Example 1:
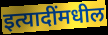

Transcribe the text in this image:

इत्यादींमधील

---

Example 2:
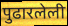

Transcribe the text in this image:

पुढारलेली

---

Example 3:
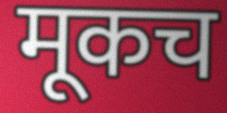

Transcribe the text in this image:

मूकच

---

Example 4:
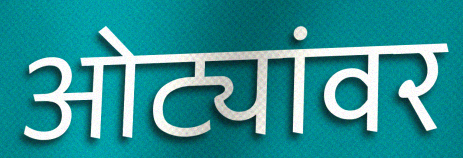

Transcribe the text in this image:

ओट्यांवर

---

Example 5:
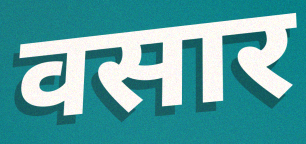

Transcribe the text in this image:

वसार